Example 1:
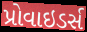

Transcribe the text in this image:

પ્રોવાઇડર્સ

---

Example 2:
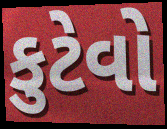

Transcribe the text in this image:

કુટેવો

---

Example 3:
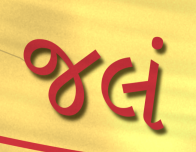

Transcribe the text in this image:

જલં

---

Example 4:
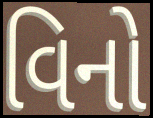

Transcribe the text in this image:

વિનો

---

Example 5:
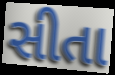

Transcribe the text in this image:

સીતા